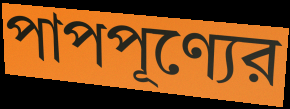
পাপপূণ্যের